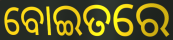
ବୋଇତରେ